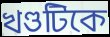
খণ্ডটিকে